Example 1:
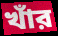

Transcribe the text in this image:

খাঁর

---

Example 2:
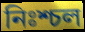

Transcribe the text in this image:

নিঃশ্চল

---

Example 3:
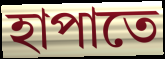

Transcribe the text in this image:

হাপাতে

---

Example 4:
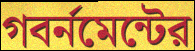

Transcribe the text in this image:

গবর্নমেন্টের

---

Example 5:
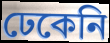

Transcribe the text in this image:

ঢেকেনি